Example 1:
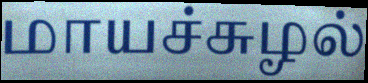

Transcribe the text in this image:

மாயச்சுழல்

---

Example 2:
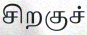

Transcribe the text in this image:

சிறகுச்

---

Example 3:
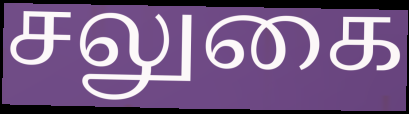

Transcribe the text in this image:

சலுகை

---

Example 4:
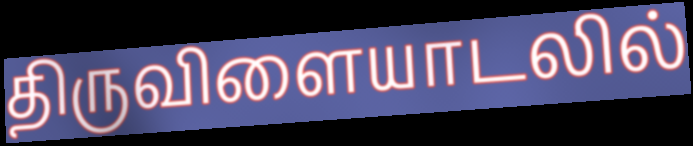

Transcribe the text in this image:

திருவிளையாடலில்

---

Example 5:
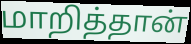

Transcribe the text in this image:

மாறித்தான்